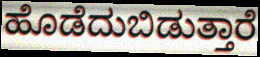
ಹೊಡೆದುಬಿಡುತ್ತಾರೆ